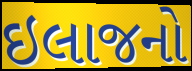
ઇલાજનો